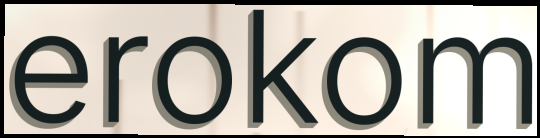
erokom